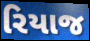
રિયાજ